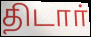
திடார்